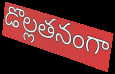
డొల్లతనంగా